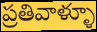
ప్రతివాళ్ళూ